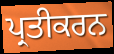
ਪ੍ਰਤੀਕਰਨ